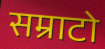
सम्राटो